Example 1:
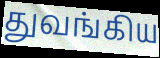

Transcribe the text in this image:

துவங்கிய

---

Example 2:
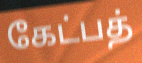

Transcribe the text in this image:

கேட்பத்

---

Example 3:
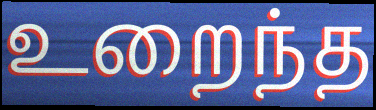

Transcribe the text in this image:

உறைந்த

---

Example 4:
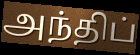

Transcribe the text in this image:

அந்திப்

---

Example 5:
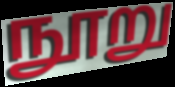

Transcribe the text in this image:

நூறு